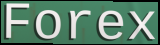
Forex